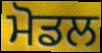
ਮੋਡਲ